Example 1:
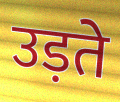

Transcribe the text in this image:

उड़ते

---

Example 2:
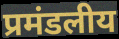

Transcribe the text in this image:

प्रमंडलीय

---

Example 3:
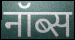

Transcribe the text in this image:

नॉब्स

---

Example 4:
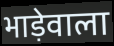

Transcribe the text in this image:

भाड़ेवाला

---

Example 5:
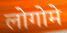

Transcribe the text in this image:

लोगोमे